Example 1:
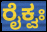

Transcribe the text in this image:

ರೈಕ್ವಃ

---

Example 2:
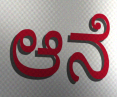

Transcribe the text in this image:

ಆನೆ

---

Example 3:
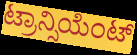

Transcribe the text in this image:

ಟ್ರಾನ್ಸಿಯೆಂಟ್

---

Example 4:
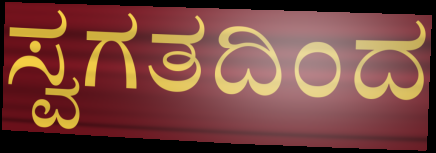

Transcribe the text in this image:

ಸ್ವಗತದಿಂದ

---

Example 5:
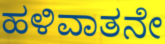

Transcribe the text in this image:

ಹಳಿವಾತನೇ